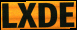
LXDE